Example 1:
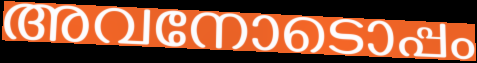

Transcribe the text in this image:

അവനോടൊപ്പം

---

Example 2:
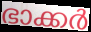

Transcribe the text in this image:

ഭാക്കർ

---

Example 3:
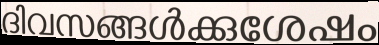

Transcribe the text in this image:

ദിവസങ്ങൾക്കുശേഷം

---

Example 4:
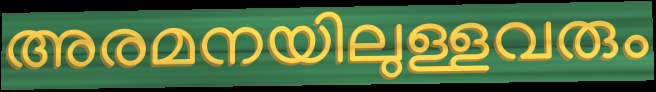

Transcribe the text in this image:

അരമനയിലുള്ളവരും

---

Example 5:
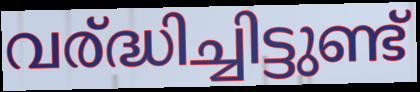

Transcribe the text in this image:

വര്ദ്ധിച്ചിട്ടുണ്ട്